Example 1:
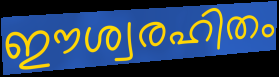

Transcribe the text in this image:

ഈശ്വരഹിതം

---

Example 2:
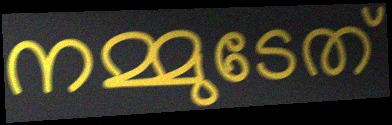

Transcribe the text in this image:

നമ്മുടേത്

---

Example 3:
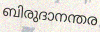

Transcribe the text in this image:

ബിരുദാനന്തര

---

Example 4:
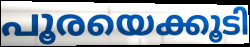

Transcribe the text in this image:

പൂരയെക്കൂടി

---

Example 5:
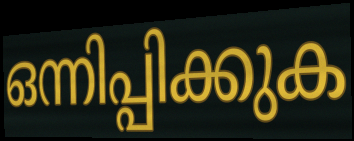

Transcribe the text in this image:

ഒന്നിപ്പിക്കുക